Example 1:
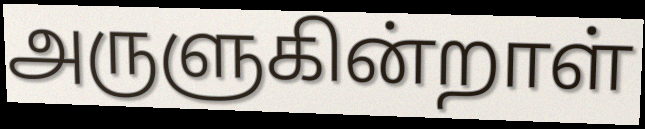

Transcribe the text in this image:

அருளுகின்றாள்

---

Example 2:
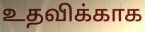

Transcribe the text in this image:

உதவிக்காக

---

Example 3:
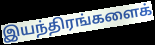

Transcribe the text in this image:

இயந்திரங்களைக்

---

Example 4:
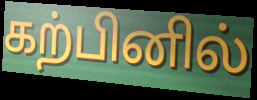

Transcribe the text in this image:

கற்பினில்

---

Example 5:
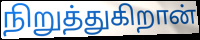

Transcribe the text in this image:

நிறுத்துகிறான்